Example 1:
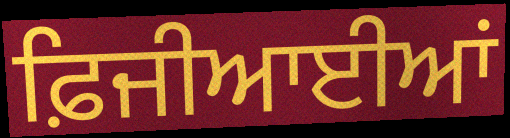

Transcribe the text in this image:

ਫ਼ਿਜੀਆਈਆਂ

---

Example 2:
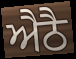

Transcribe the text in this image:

ਐਠੈ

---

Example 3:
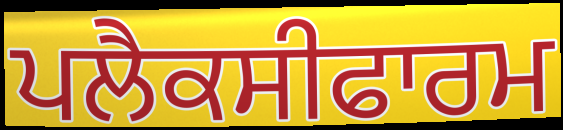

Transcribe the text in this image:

ਪਲੈਕਸੀਫਾਰਮ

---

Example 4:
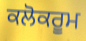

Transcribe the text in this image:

ਕਲੋਕਰੂਮ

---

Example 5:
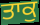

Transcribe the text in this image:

ਤਾਕੁ